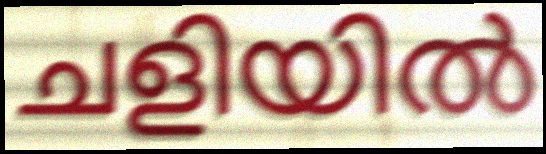
ചളിയിൽ